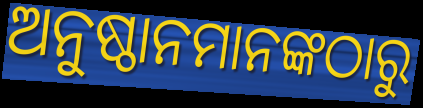
ଅନୁଷ୍ଠାନମାନଙ୍କଠାରୁ